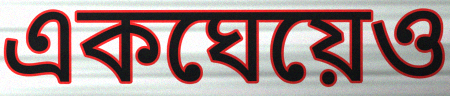
একঘেয়েও